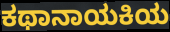
ಕಥಾನಾಯಕಿಯ